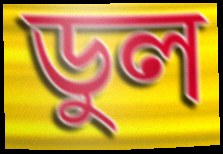
ডুল